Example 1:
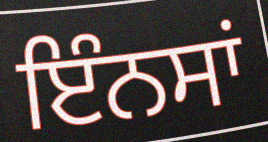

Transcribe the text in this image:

ਇੰਨਸਾਂ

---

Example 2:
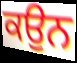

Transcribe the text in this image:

ਕਉਨ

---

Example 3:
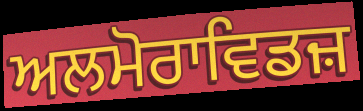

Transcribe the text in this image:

ਅਲਮੋਰਾਵਿਡਜ਼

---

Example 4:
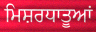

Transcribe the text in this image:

ਮਿਸ਼ਰਧਾਤੂਆਂ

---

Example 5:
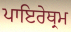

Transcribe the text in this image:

ਪਾਇਰੇਥ੍ਰਮ